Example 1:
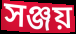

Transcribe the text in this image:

সঞ্জয়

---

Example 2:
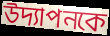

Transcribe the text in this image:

উদ্যাপনকে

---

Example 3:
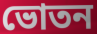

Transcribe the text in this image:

ভোতন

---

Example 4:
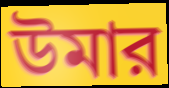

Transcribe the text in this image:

উমার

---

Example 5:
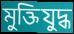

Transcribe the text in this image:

মুক্তিযুদ্ধ